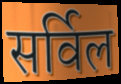
सर्विल